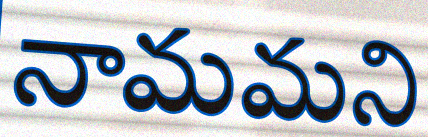
నామమని